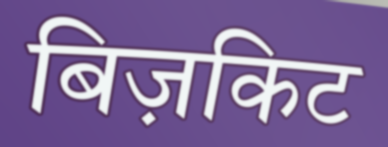
बिज़किट